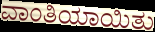
ವಾಂತಿಯಾಯಿತು